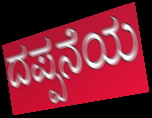
ದಪ್ಪನೆಯ